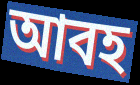
আবহ